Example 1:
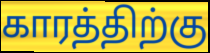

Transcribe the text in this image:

காரத்திற்கு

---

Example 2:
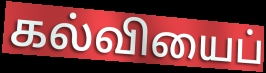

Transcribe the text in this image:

கல்வியைப்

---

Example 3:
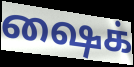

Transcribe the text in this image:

ஷைக்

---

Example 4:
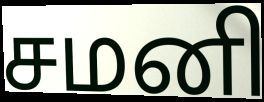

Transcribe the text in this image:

சமனி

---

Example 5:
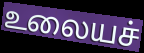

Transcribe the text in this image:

உலையச்